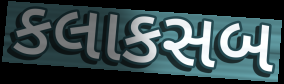
કલાકસબ